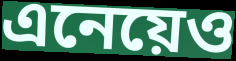
এনেয়েও